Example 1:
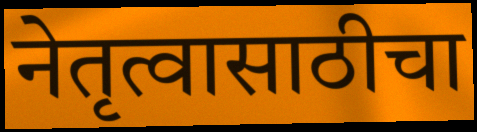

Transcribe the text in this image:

नेतृत्वासाठीचा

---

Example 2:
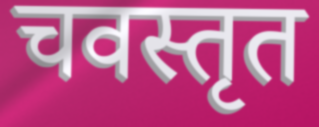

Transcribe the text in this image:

चवस्तृत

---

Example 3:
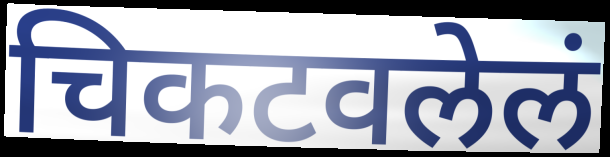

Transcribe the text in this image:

चिकटवलेलं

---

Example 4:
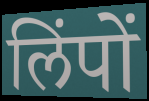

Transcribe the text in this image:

लिंपों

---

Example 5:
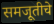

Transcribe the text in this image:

समजूतीचे